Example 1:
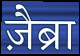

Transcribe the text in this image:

ज़ैब्रा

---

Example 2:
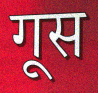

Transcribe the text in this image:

गूस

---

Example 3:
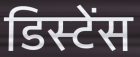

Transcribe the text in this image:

डिस्टेंस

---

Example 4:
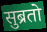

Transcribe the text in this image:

सुब्रतो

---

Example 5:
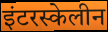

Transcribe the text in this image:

इंटरस्केलीन